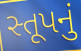
સ્તૂપનું